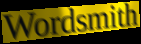
Wordsmith